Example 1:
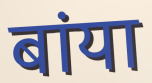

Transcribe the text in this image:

बांया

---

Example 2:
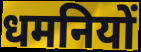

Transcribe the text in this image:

धमनियों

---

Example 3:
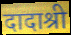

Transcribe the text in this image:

दादाश्री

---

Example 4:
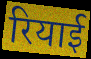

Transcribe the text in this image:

रियाई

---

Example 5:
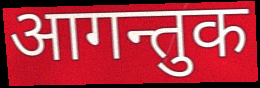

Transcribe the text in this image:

आगन्तुक